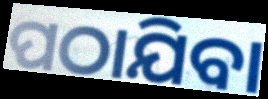
ପଠାଯିବା